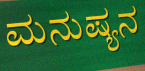
ಮನುಷ್ಯನ